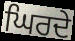
ਘਿਰਦੇ